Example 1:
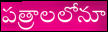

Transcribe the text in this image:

పత్రాలలోనూ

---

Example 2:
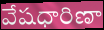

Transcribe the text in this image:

వేషధారిణా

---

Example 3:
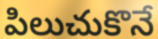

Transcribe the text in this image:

పిలుచుకొనే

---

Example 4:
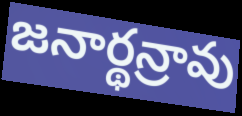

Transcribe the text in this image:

జనార్థన్రావు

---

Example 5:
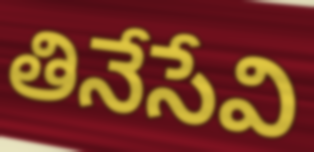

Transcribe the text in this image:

తినేసేవి